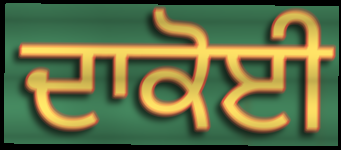
ਦਾਕੋਈ